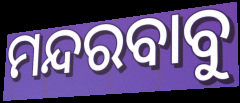
ମନ୍ଦରବାବୁ